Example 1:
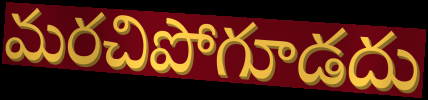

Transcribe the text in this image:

మరచిపోగూడదు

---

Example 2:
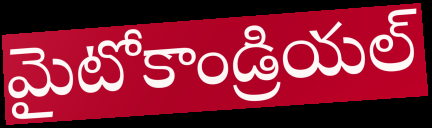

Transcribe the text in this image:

మైటోకాండ్రియల్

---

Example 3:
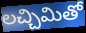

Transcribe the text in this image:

లచ్చిమితో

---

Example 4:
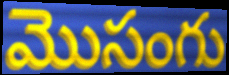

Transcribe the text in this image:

మొసంగు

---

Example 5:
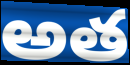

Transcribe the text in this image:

అత